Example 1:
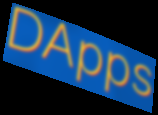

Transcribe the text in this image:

DApps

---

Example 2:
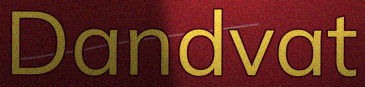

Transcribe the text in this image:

Dandvat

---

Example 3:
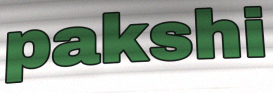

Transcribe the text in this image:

pakshi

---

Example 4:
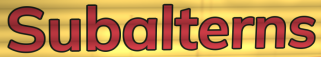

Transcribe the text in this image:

Subalterns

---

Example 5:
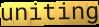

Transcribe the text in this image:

uniting